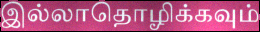
இல்லாதொழிக்கவும்